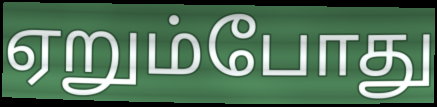
ஏறும்போது